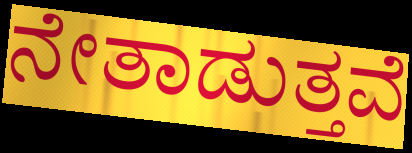
ನೇತಾಡುತ್ತವೆ